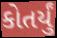
કોતર્યું